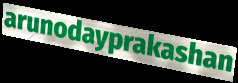
arunodayprakashan